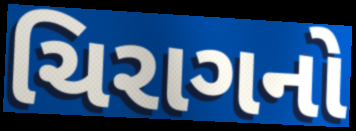
ચિરાગનો